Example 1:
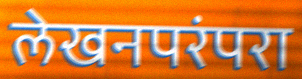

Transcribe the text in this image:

लेखनपरंपरा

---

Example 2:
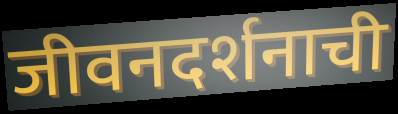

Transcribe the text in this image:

जीवनदर्शनाची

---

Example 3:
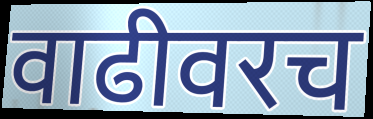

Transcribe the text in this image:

वाढीवरच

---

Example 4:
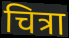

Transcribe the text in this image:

चित्रा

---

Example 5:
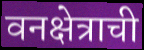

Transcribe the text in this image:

वनक्षेत्राची